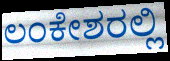
ಲಂಕೇಶರಲ್ಲಿ